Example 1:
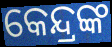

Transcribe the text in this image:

କେନ୍ଦ୍ରଙ୍କ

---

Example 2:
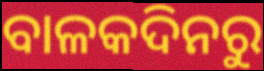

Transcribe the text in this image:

ବାଳକଦିନରୁ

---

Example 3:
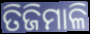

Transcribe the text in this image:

ତିଜିମାଳି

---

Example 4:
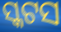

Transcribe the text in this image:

ସ୍କଟସ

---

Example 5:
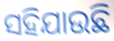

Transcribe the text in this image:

ସହିଯାଉଛି